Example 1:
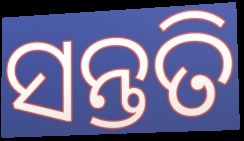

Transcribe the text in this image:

ସନ୍ତତି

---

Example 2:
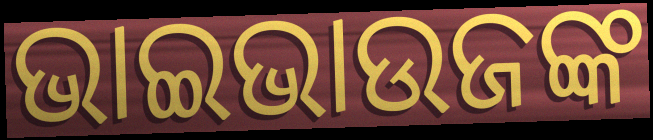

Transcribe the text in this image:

ଭାଇଭାଉଜଙ୍କ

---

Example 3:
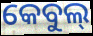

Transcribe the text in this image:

କେବୁଲ୍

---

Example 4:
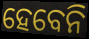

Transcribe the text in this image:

ହେବେନି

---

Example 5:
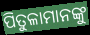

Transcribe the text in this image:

ପିତୁଳାମାନଙ୍କୁ